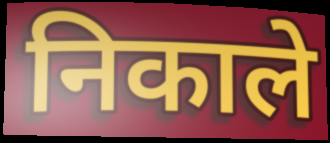
निकाले